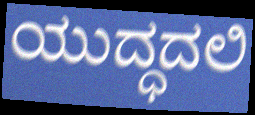
ಯುದ್ಧದಲಿ